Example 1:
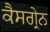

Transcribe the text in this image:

ਕੈਸਗ੍ਰੇਨ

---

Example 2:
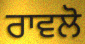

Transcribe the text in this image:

ਰਾਵਲੋ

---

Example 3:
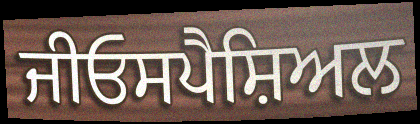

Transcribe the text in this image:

ਜੀਓਸਪੈਸ਼ਿਅਲ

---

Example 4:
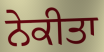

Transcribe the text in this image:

ਨੇਕੀਤਾ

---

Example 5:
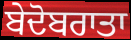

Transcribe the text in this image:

ਬੇਦੋਬਰਾਤਾ